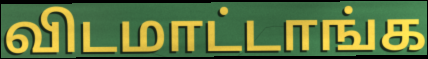
விடமாட்டாங்க